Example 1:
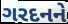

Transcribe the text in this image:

ગરદનને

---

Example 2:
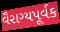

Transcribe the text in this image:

વૈરાગ્યપૂર્વક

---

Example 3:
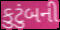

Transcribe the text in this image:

કુટુંબની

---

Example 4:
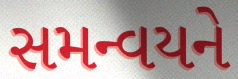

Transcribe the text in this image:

સમન્વયને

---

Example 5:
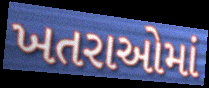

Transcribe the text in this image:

ખતરાઓમાં